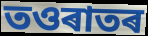
তওৰাতৰ